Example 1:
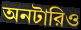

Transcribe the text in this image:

অনটারিও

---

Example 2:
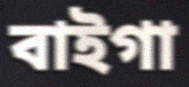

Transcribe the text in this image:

বাইগা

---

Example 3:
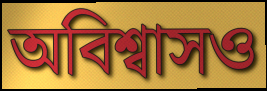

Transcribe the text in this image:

অবিশ্বাসও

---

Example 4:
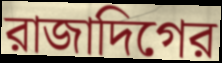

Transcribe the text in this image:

রাজাদিগের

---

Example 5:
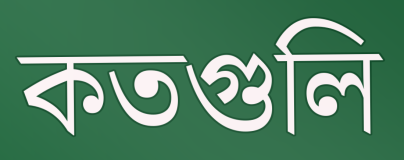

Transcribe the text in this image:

কতগুলি